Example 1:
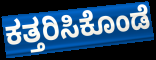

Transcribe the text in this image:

ಕತ್ತರಿಸಿಕೊಂಡೆ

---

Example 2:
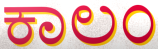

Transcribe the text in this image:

ಕಾಲಂ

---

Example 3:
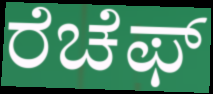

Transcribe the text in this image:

ರೆಚೆಫ್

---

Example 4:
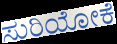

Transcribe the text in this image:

ಸುರಿಯೋಕೆ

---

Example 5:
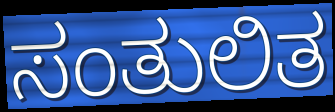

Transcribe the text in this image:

ಸಂತುಲಿತ